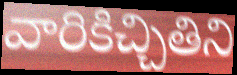
వారికిచ్చితిని